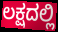
ಲಕ್ಷದಲ್ಲಿ